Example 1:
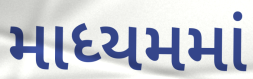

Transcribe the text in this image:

માધ્યમમાં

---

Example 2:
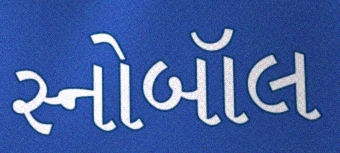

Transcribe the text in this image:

સ્નોબૉલ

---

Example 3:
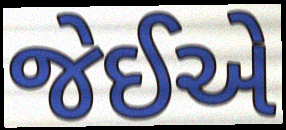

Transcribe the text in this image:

જેઈએ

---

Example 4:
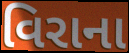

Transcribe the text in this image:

વિરાના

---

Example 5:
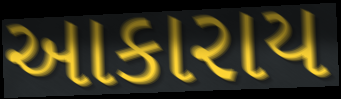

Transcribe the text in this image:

આકારાય